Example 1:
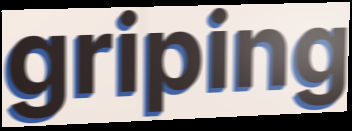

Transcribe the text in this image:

griping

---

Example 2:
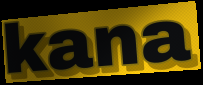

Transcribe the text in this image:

kana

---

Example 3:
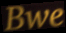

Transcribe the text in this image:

Bwe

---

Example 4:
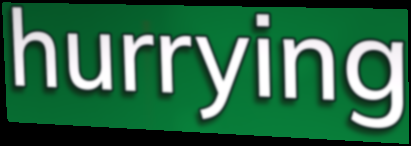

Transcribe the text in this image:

hurrying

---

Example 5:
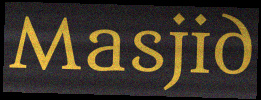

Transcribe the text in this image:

Masjid